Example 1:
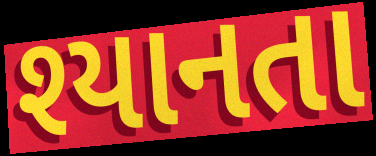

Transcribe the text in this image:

શ્યાનતા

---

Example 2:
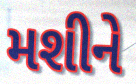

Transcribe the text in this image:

મશીને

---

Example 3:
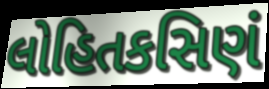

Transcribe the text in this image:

લોહિતકસિણં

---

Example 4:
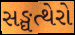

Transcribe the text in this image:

સઙ્ઘત્થેરો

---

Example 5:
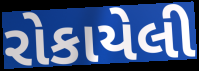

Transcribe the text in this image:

રોકાયેલી